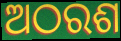
ଅଠରଶ